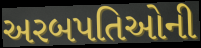
અરબપતિઓની